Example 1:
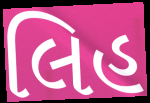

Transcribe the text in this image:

લિહ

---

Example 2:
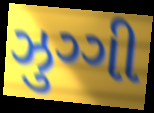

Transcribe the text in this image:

ઝુગ્ગી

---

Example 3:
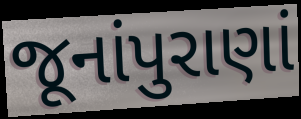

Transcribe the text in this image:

જૂનાંપુરાણાં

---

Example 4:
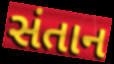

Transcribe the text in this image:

સંતાન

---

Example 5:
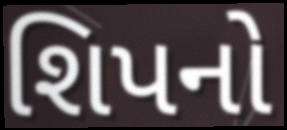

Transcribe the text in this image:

શિપનો